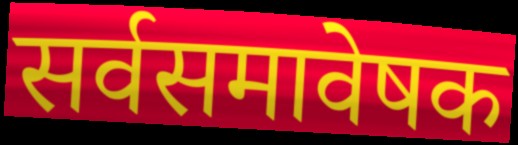
सर्वसमावेषक